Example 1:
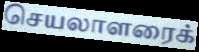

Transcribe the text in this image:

செயலாளரைக்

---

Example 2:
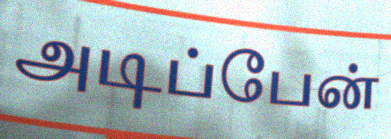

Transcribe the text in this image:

அடிப்பேன்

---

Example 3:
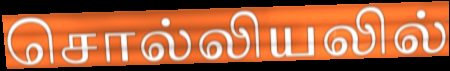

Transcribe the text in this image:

சொல்லியலில்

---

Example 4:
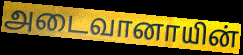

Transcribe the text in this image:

அடைவானாயின்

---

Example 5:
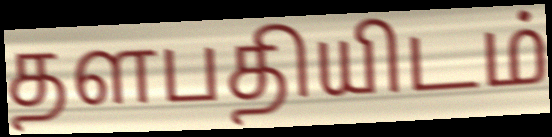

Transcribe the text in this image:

தளபதியிடம்